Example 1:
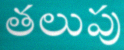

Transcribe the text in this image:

తలుపు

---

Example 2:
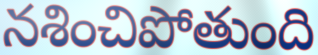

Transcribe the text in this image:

నశించిపోతుంది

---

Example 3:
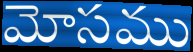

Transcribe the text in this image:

మోసము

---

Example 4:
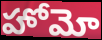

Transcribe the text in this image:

హోమో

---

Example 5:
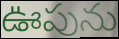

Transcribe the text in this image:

ఊపును